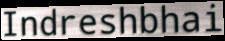
Indreshbhai